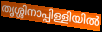
തൃശ്ശിനാപ്പിള്ളിയിൽ